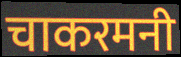
चाकरमनी